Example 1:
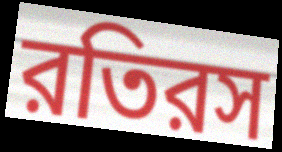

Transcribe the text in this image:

রতিরস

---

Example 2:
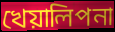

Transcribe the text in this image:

খেয়ালিপনা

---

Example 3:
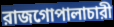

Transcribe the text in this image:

রাজগোপালাচারী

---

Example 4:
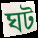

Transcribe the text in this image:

ঘট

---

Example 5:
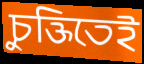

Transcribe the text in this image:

চুক্তিতেই